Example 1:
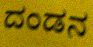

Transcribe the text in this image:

ದಂಡನ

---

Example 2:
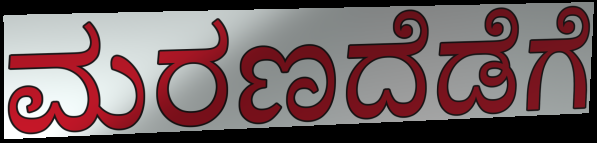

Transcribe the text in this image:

ಮರಣದೆಡೆಗೆ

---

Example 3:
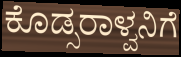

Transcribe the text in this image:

ಕೊಡ್ಸರಾಳ್ವನಿಗೆ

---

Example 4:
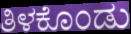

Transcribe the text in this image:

ತಿಳಕೊಂಡು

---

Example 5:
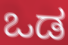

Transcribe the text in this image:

ಒಡ